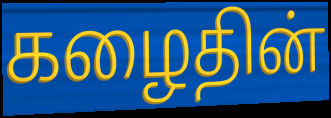
கழைதின்